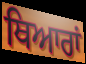
ਥਿਆਰਾਂ